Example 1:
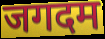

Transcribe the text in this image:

जगदम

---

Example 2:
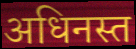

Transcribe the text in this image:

अधिनस्त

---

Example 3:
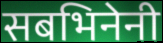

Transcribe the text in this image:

सबभिनेनी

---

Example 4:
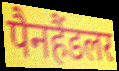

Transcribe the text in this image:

पैनहैंडलर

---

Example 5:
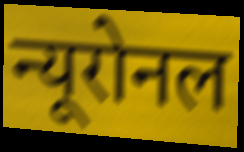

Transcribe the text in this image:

न्यूरोनल